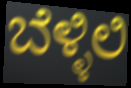
ಬೆಳ್ಳಿಲಿ